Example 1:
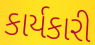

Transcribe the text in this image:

કાર્યકારી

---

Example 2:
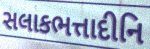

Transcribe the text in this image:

સલાકભત્તાદીનિ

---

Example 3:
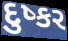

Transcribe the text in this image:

દુષ્કર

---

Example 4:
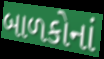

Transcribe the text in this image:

બાળકોનાં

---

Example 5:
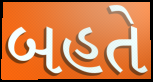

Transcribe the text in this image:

બહતે